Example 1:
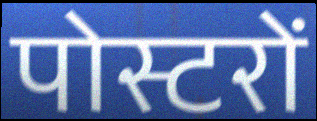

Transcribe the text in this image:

पोस्‍टरों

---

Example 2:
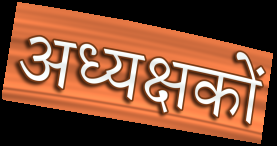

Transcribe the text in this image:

अध्यक्षकों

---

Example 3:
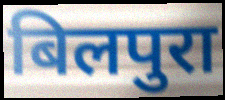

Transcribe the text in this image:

बिलपुरा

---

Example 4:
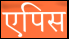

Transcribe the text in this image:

एपिस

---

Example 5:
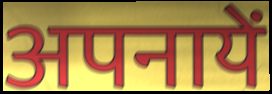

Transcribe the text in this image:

अपनायें